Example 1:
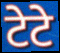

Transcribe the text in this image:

टेटे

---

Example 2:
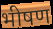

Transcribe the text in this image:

भीषण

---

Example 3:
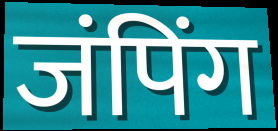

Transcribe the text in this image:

जंपिंग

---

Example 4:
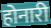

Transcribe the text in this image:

होनारी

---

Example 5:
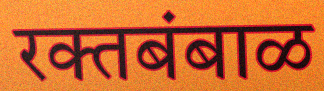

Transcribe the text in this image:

रक्‍तबंबाळ